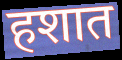
हशात